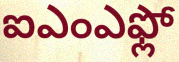
ఐఎంఎఫ్లో